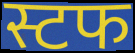
स्टफ